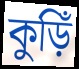
কুড়িঁ